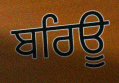
ਬਰਿਊ